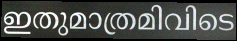
ഇതുമാത്രമിവിടെ